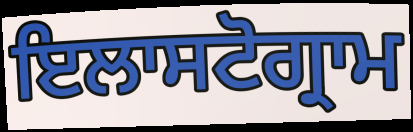
ਇਲਾਸਟੋਗ੍ਰਾਮ